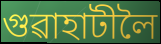
গুৱাহাটীলৈ